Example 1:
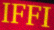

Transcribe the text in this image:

IFFI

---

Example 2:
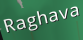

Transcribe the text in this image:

Raghava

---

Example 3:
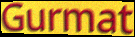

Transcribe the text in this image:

Gurmat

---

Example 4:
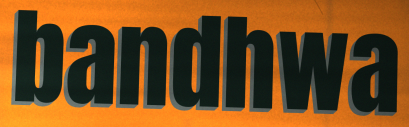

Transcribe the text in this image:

bandhwa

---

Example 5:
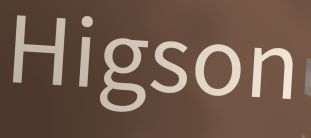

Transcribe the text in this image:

Higson